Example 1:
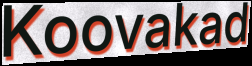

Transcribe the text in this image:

Koovakad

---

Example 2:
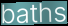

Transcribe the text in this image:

baths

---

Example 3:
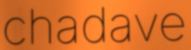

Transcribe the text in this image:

chadave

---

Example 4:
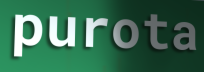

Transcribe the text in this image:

purota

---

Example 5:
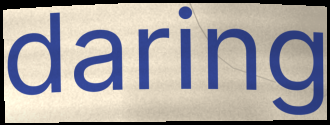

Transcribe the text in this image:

daring